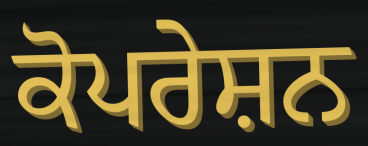
ਕੋਪਰੇਸ਼ਨ